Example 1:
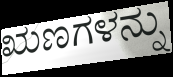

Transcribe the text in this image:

ಋಣಗಳನ್ನು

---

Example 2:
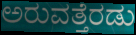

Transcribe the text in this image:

ಅರುವತ್ತೆರಡು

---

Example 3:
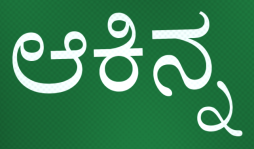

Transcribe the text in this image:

ಆಕಿನ್ನ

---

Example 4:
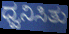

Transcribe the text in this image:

ಧ್ವನಿಸಿತು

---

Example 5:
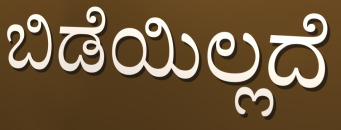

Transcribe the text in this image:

ಬಿಡೆಯಿಲ್ಲದೆ